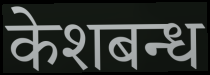
केशबन्ध